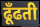
ढूँढती